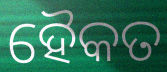
ହୈକତ